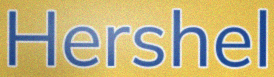
Hershel